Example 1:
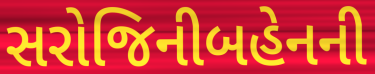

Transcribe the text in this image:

સરોજિનીબહેનની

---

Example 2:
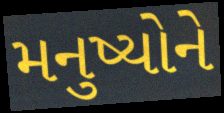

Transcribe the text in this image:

મનુષ્યોને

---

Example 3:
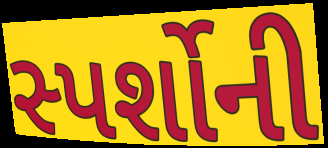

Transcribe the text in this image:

સ્પર્શોની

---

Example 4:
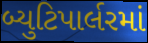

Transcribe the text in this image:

બ્યુટિપાર્લરમાં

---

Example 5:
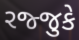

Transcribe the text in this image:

રજ્જુકે